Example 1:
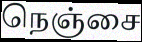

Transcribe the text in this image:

நெஞ்சை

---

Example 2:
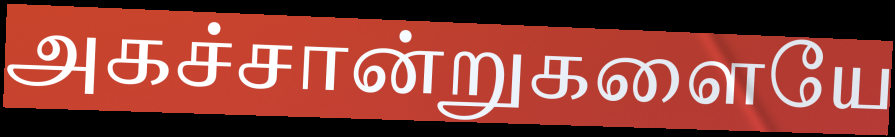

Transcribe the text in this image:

அகச்சான்றுகளையே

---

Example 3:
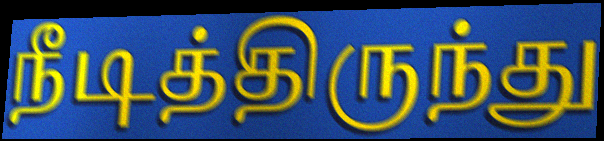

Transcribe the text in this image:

நீடித்திருந்து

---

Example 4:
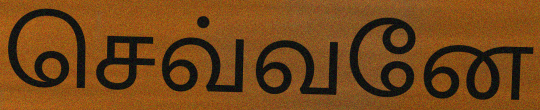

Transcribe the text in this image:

செவ்வனே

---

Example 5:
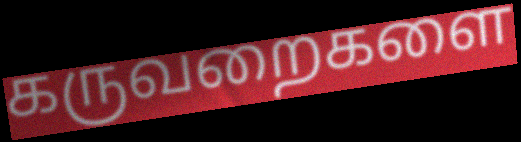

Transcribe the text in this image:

கருவறைகளை